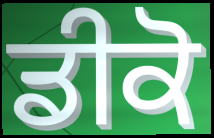
ਡੀਕੋ